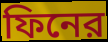
ফিনের